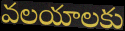
వలయాలకు